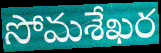
సోమశేఖర